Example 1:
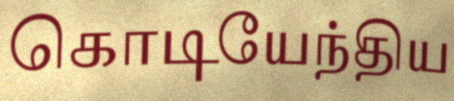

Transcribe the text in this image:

கொடியேந்திய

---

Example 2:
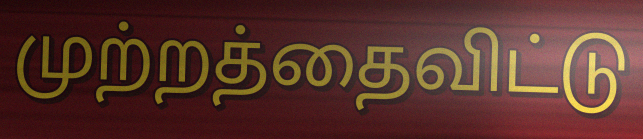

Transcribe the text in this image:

முற்றத்தைவிட்டு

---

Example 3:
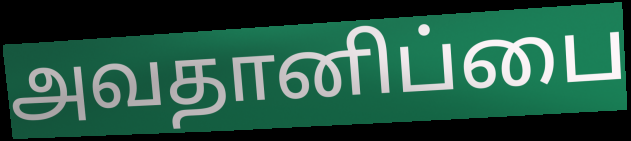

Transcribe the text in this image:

அவதானிப்பை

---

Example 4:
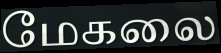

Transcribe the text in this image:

மேகலை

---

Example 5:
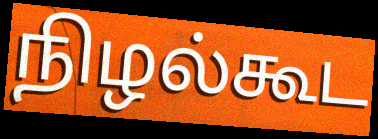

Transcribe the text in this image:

நிழல்கூட